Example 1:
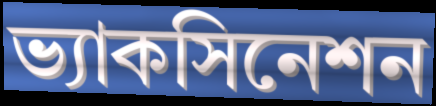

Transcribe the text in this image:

ভ্যাকসিনেশন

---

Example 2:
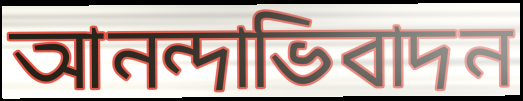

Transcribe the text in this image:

আনন্দাভিবাদন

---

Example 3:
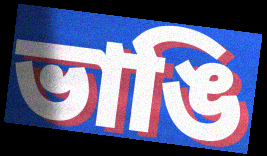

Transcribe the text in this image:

ভাঙি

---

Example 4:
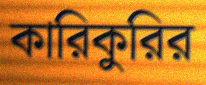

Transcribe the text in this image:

কারিকুরির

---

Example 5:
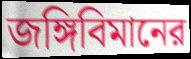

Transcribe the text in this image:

জঙ্গিবিমানের